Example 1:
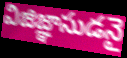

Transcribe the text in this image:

విజిజ్ఞాసుడనై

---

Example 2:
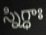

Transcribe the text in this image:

స్నిగ్ధాః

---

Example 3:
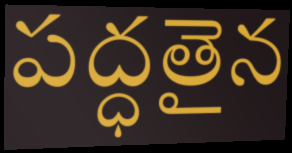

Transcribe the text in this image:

పద్ధతైన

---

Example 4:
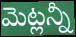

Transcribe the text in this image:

మెట్లన్నీ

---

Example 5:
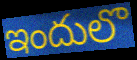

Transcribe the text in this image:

ఇందులొ